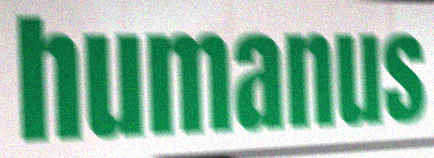
humanus